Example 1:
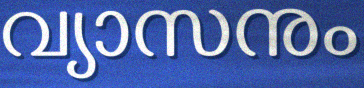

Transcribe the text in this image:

വ്യാസനും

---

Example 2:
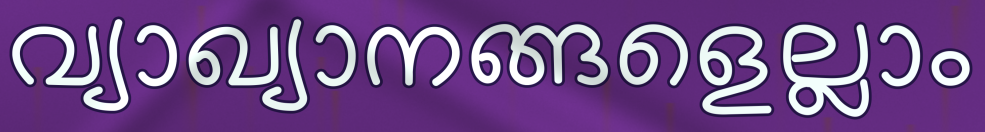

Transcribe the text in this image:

വ്യാഖ്യാനങ്ങളെല്ലാം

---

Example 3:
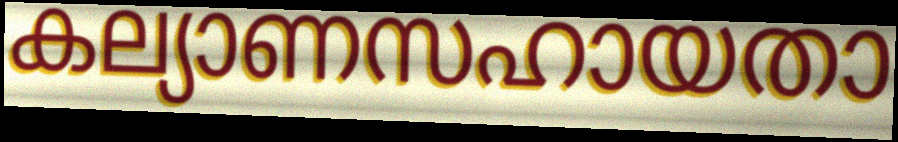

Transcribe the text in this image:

കല്യാണസഹായതാ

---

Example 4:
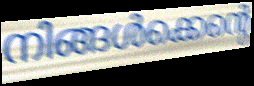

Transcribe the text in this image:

നിങ്ങൾക്കെന്റെ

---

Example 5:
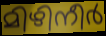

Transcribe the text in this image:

മിഴിനീർ